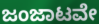
ಜಂಜಾಟವೇ